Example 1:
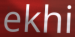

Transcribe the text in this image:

ekhi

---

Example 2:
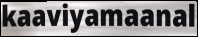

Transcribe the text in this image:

kaaviyamaanal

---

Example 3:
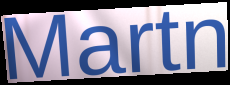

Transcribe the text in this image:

Martn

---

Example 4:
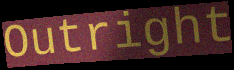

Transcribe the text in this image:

Outright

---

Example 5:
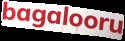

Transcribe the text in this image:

bagalooru